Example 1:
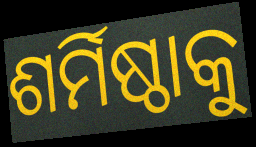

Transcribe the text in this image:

ଶର୍ମିଷ୍ଠାକୁ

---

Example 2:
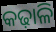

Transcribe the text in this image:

କଢ଼ାଳି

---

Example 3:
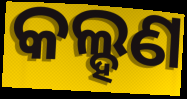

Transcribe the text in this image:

କଲ୍ହଣ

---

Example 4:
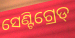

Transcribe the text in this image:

ସେଣ୍ଟିଗ୍ରେଡ୍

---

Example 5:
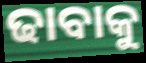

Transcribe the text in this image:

ଢାବାକୁ